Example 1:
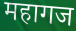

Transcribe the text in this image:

महागज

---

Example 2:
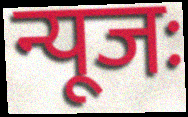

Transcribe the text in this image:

न्यूजः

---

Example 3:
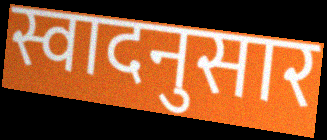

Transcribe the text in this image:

स्वादनुसार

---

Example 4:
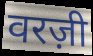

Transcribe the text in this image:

वरज़ी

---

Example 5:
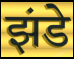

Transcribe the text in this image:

झंडे